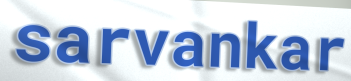
sarvankar